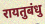
रायतुबंधु